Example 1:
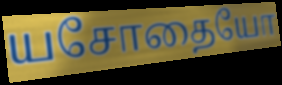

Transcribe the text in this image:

யசோதையோ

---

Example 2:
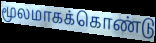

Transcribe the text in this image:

மூலமாகக்கொண்டு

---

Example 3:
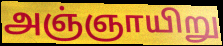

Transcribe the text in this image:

அஞ்ஞாயிறு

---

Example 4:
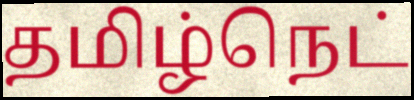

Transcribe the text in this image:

தமிழ்நெட்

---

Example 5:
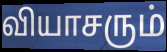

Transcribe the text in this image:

வியாசரும்